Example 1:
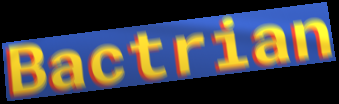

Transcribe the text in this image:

Bactrian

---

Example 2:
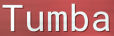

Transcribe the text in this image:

Tumba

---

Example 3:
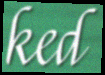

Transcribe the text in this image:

ked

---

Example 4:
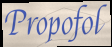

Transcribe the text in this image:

Propofol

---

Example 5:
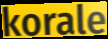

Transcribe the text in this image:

korale